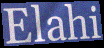
Elahi